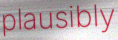
plausibly